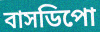
বাসডিপো